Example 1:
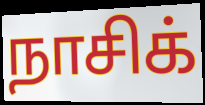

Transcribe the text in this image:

நாசிக்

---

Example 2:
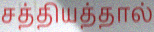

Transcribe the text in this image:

சத்தியத்தால்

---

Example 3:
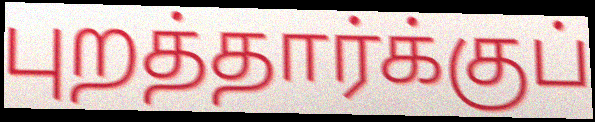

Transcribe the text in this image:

புறத்தார்க்குப்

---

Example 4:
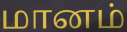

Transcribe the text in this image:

மானம்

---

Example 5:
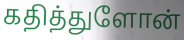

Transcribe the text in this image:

கதித்துளோன்